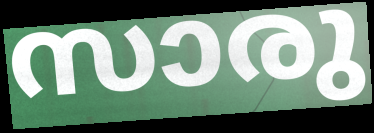
സാരു